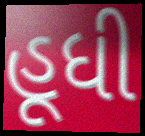
હૂધી